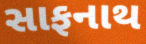
સાફનાથ